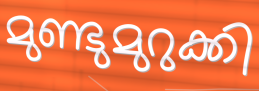
മുണ്ടുമുറുക്കി